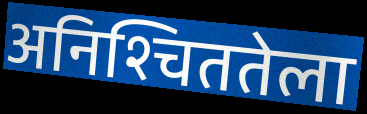
अनिश्चिततेला